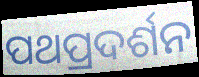
ପଥପ୍ରଦର୍ଶନ